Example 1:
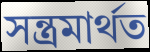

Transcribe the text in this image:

সন্ত্ৰমাৰ্থত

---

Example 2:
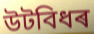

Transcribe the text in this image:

উটবিধৰ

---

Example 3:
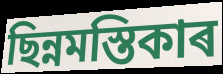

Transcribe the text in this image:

ছিন্নমস্তিকাৰ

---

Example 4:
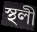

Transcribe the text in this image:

স্থলী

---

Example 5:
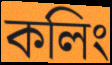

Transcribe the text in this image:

কলিং